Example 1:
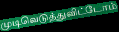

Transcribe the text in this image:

முடிவெடுத்துவிட்டோம்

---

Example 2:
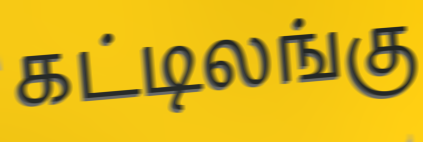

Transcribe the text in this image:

கட்டிலங்கு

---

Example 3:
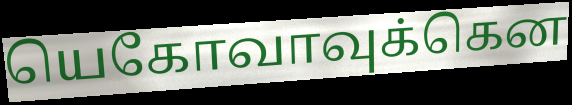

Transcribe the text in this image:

யெகோவாவுக்கென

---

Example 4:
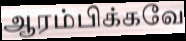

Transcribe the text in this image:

ஆரம்பிக்கவே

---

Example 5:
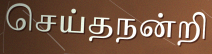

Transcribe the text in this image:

செய்தநன்றி